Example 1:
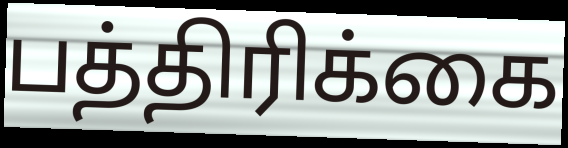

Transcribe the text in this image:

பத்திரிக்கை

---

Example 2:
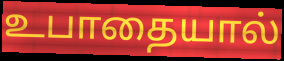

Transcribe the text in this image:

உபாதையால்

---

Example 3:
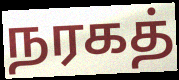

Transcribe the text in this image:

நரகத்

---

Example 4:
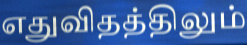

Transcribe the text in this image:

எதுவிதத்திலும்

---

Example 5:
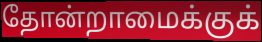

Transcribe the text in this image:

தோன்றாமைக்குக்